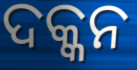
ଦକ୍କନ